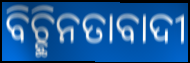
ବିଚ୍ଛିନତାବାଦୀ